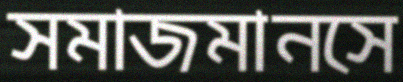
সমাজমানসে